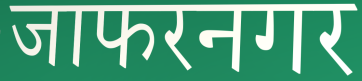
जाफरनगर